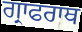
ਗ੍ਰਾਫਰਾਥ